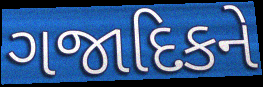
ગજાદિકને